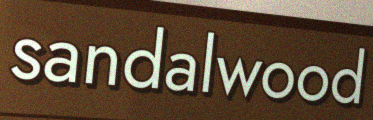
sandalwood